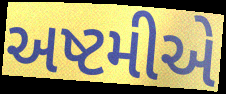
અષ્ટમીએ